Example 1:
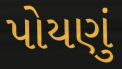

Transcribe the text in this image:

પોયણું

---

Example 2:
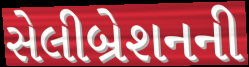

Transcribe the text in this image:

સેલીબ્રેશનની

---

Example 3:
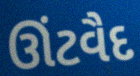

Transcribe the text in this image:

ઊંટવૈદ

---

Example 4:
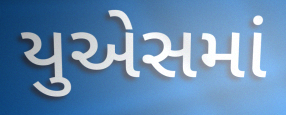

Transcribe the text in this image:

યુએસમાં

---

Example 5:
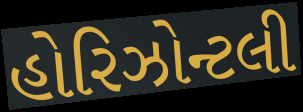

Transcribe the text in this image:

હોરિઝોન્ટલી